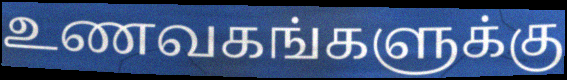
உணவகங்களுக்கு